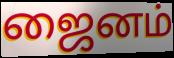
ஜைனம்